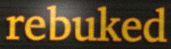
rebuked